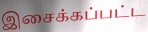
இசைக்கப்பட்ட